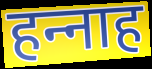
हन्नाह